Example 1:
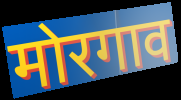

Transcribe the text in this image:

मोरगाव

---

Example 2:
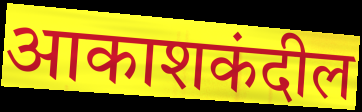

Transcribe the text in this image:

आकाशकंदील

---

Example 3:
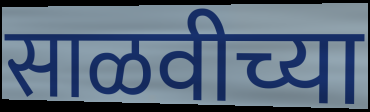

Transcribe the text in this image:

साळवीच्या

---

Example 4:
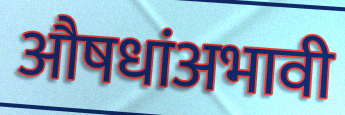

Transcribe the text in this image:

औषधांअभावी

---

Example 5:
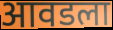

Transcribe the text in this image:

आवडला